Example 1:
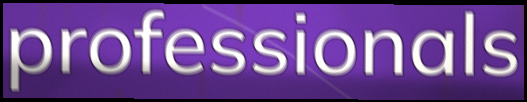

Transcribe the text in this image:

professionals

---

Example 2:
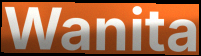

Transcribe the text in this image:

Wanita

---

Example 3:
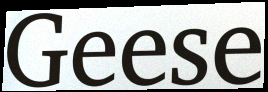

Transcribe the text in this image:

Geese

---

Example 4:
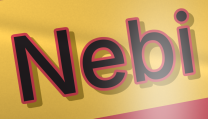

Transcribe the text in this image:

Nebi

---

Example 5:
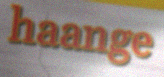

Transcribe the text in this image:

haange